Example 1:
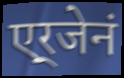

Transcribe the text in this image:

एर्जेनं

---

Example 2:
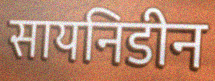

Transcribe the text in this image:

सायनिडीन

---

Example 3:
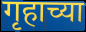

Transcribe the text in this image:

गृहाच्या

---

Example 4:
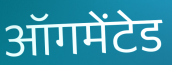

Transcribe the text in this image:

ऑगमेंटेड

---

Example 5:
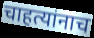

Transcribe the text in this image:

चाहत्यांनाच